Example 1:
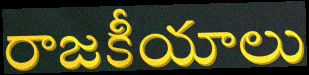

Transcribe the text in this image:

రాజకీయాలు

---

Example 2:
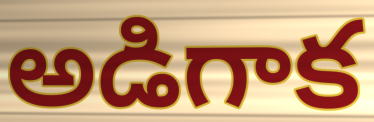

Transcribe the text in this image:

అడిగాక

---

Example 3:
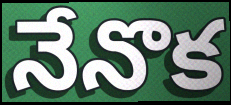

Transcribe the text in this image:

నేనొక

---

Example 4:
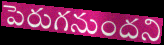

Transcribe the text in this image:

పెరుగనుందని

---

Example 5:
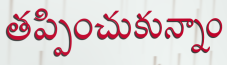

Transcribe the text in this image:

తప్పించుకున్నాం